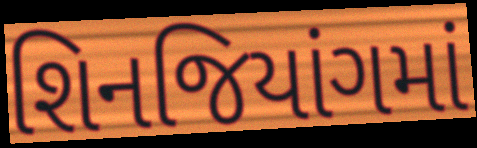
શિનજિયાંગમાં